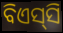
ବିଏସ୍‌ସି